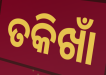
ତକିଖାଁ